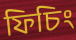
ফিচিং